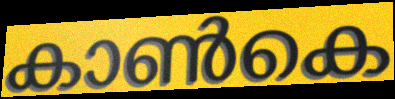
കാൺകെ